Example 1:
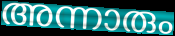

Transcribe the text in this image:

അന്നാരും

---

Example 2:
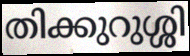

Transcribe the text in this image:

തിക്കുറുശ്ശി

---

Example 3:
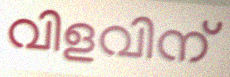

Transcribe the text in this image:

വിളവിന്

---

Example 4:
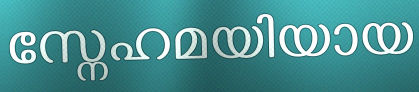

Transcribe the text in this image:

സ്നേഹമയിയായ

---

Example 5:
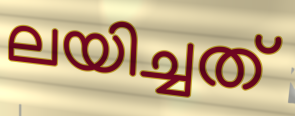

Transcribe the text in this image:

ലയിച്ചത്